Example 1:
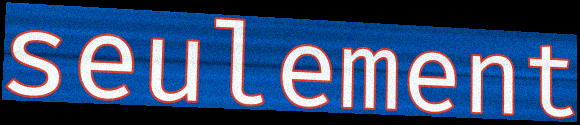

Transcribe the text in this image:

seulement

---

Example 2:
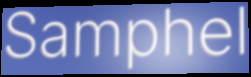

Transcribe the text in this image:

Samphel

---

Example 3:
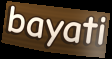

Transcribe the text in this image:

bayati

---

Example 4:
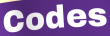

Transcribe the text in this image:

Codes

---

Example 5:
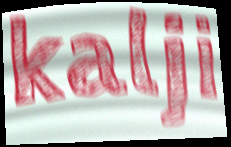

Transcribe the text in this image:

kalji